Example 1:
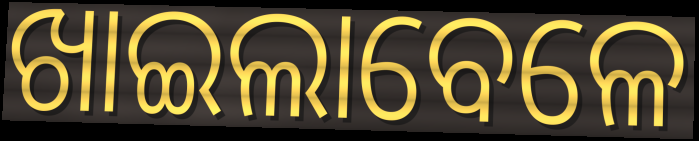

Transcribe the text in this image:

ଖାଇଲାବେଳେ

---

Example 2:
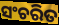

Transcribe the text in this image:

ସଂଚରିତ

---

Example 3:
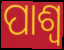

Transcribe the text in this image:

ପାଶ୍ୱ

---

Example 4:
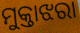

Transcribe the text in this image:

ମୁକ୍ତାଝରା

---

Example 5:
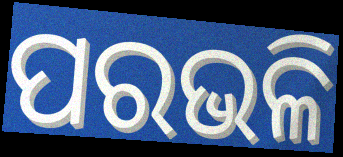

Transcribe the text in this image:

ପରଭଳି